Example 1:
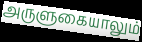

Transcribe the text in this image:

அருளுகையாலும்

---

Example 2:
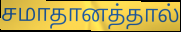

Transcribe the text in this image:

சமாதானத்தால்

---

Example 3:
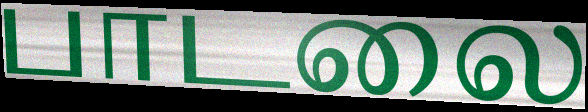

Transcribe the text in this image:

பாடலை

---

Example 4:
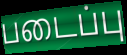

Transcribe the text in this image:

படைப்பு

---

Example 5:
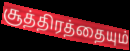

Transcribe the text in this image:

சூத்திரத்தையும்